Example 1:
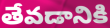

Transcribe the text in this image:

తేవడానికి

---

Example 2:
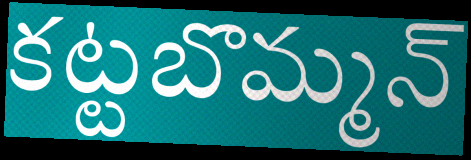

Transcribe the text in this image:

కట్టబొమ్మన్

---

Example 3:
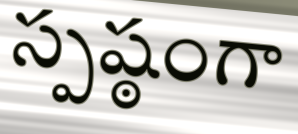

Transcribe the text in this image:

స్పష్ఠంగా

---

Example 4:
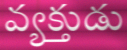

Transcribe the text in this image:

వ్యక్తుడు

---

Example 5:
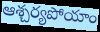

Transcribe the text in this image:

ఆశ్చర్యపోయాం